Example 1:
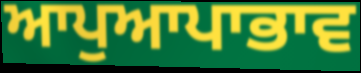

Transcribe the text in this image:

ਆਪੁਆਪਾਭਾਵ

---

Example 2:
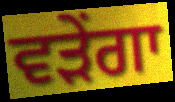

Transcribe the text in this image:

ਵੜੇਂਗਾ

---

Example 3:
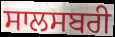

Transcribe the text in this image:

ਸਾਲਸਬਰੀ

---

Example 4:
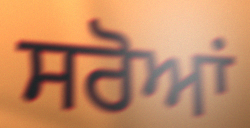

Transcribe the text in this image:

ਸਰੋਆਂ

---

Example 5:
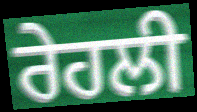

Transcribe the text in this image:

ਰੇਹਲੀ